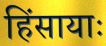
हिंसायाः